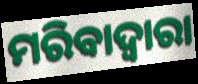
ମରିବାଦ୍ୱାରା